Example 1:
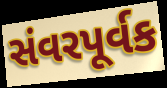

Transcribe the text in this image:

સંવરપૂર્વક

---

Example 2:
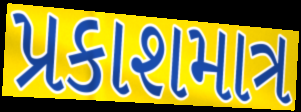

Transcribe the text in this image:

પ્રકાશમાત્ર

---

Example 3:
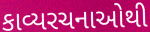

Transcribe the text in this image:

કાવ્યરચનાઓથી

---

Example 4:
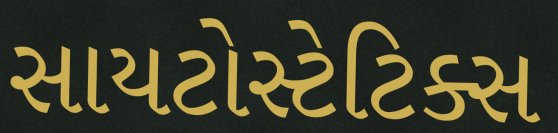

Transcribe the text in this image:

સાયટોસ્ટેટિક્સ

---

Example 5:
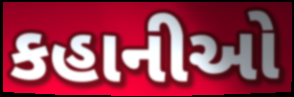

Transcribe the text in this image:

કહાનીઓ